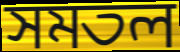
সমতল